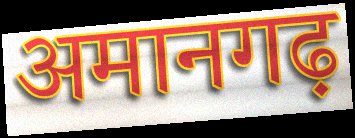
अमानगढ़